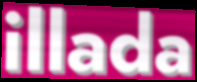
illada